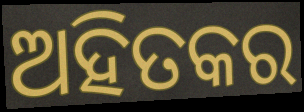
ଅହିତକର